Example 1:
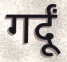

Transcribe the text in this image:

गर्दूं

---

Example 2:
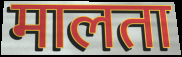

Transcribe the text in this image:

मालता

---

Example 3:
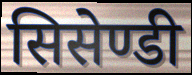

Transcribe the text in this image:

सिसेण्डी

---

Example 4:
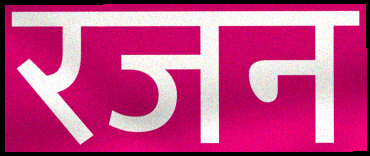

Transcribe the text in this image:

रजन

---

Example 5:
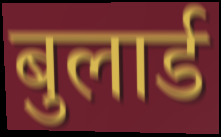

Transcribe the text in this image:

बुलार्ड